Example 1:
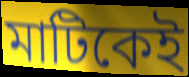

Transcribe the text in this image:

মাটিকেই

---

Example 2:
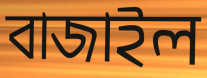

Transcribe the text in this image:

বাজাইল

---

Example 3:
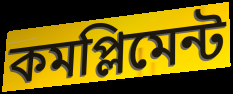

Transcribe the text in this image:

কমপ্লিমেন্ট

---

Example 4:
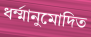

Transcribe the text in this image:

ধর্ম্মানুমোদিত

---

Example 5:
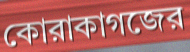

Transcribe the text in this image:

কোরাকাগজের